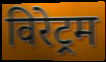
विरेट्रम